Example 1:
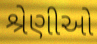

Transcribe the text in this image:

શ્રેણીઓ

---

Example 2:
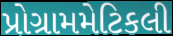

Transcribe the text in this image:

પ્રોગ્રામમેટિકલી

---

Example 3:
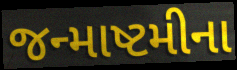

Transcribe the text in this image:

જન્માષ્ટમીના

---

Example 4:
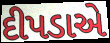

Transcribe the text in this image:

દીપડાએ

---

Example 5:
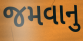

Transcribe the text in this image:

જમવાનુ